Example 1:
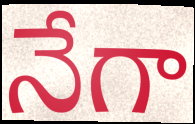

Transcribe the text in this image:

నేగా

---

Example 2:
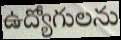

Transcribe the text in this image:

ఉద్యోగులను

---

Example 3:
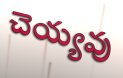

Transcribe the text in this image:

చెయ్యవు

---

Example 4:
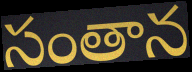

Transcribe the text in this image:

సంతాన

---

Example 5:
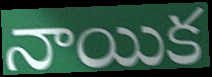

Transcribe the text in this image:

నాయిక